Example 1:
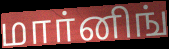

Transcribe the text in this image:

மார்னிங்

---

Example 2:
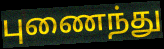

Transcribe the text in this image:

புணைந்து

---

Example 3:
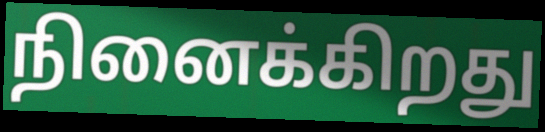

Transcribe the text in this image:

நினைக்கிறது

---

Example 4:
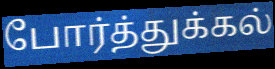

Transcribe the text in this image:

போர்த்துக்கல்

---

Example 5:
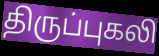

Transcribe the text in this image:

திருப்புகலி